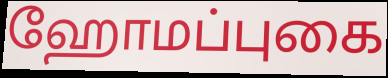
ஹோமப்புகை